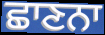
ਛਾਣਨਾ